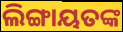
ଲିଙ୍ଗାୟତଙ୍କ